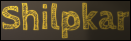
Shilpkar